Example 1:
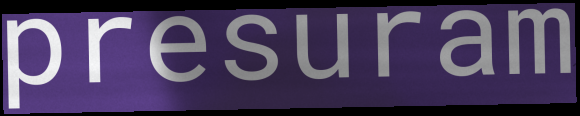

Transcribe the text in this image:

presuram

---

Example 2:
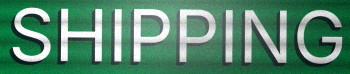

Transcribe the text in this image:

SHIPPING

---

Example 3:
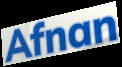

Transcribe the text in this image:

Afnan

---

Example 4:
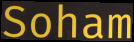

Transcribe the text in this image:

Soham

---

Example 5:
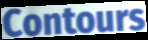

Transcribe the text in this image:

Contours